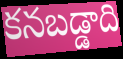
కనబడ్డాది